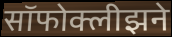
सॉफोक्लीझने